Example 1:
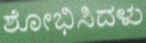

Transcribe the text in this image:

ಶೋಭಿಸಿದಳು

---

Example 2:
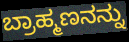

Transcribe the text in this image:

ಬ್ರಾಹ್ಮಣನನ್ನು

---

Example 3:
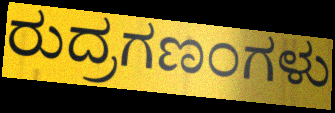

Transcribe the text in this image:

ರುದ್ರಗಣಂಗಳು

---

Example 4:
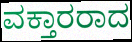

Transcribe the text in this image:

ವಕ್ತಾರರಾದ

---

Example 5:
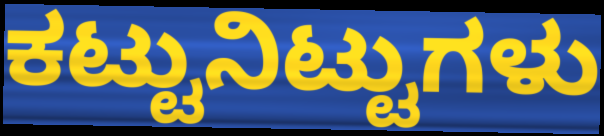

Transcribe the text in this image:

ಕಟ್ಟುನಿಟ್ಟುಗಳು